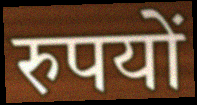
रुपयों